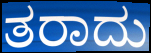
ತರಾದು